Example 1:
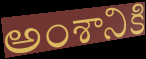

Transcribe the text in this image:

అంశానికి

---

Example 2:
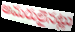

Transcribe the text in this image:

అమరులైనట్లు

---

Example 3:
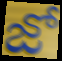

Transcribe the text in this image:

జో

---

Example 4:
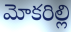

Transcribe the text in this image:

మోకరిల్లి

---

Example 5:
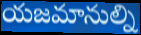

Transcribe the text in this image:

యజమానుల్ని